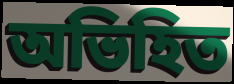
অভিহিত